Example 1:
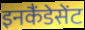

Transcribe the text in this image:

इनकैंडेसेंट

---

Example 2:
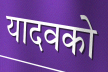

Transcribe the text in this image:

यादवको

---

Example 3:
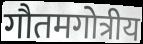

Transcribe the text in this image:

गौतमगोत्रीय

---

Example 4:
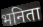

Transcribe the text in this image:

भनिता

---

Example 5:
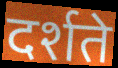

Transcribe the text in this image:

दर्शते